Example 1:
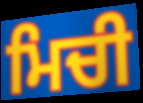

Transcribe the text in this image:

ਮਿਚੀ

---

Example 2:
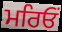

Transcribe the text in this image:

ਮਰਿਓਂ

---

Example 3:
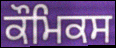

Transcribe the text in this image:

ਕੌਮਿਕਸ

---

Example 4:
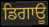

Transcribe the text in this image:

ਡਿਗਾਊ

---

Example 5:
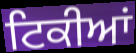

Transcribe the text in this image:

ਟਿਕੀਆਂ